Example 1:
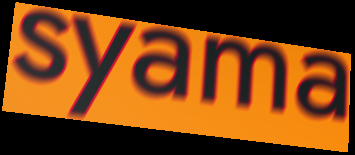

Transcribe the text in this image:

syama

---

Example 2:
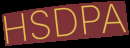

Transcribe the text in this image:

HSDPA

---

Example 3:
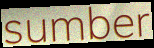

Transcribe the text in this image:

sumber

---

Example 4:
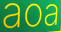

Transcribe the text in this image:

aoa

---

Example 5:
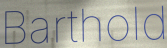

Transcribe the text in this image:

Barthold